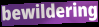
bewildering